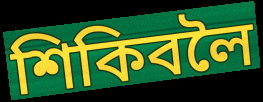
শিকিবলৈ